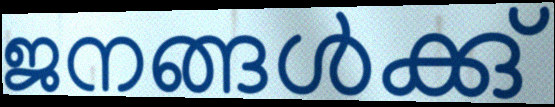
ജനങ്ങൾക്കു്